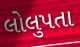
લોલુપતા